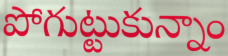
పోగుట్టుకున్నాం